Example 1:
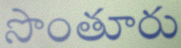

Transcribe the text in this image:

సొంతూరు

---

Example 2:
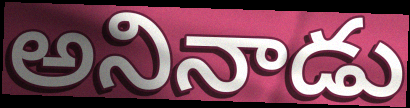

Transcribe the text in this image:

అనినాడు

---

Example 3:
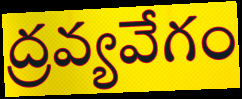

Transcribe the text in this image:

ద్రవ్యవేగం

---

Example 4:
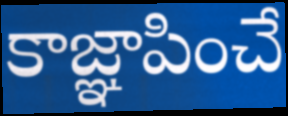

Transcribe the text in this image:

కాజ్ఞాపించే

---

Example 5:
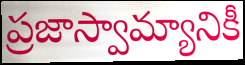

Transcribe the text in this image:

ప్రజాస్వామ్యానికీ